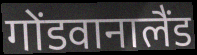
गोंडवानालैंड